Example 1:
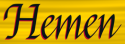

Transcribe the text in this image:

Hemen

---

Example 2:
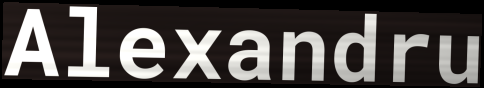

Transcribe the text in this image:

Alexandru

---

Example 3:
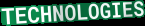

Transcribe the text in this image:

TECHNOLOGIES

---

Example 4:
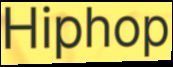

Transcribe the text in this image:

Hiphop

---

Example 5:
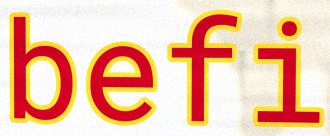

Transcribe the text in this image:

befi